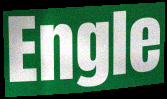
Engle